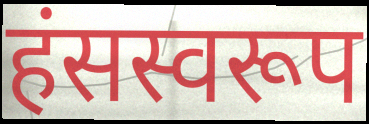
हंसस्वरूप